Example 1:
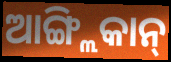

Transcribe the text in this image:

ଆଙ୍ଗ୍ଲିକାନ୍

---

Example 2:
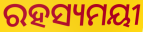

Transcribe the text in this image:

ରହସ୍ୟମୟୀ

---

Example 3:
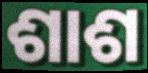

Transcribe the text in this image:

ଶାଶ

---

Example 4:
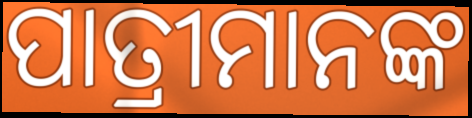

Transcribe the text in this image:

ପାତ୍ରୀମାନଙ୍କ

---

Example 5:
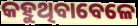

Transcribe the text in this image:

କହୁଥିବାବେଳେ